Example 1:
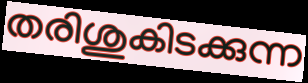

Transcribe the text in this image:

തരിശുകിടക്കുന്ന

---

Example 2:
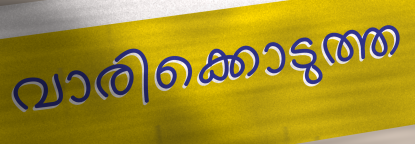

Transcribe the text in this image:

വാരിക്കൊടുത്ത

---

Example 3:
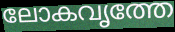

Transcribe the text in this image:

ലോകവൃത്തേ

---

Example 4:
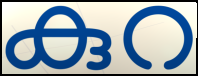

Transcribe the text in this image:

കുറ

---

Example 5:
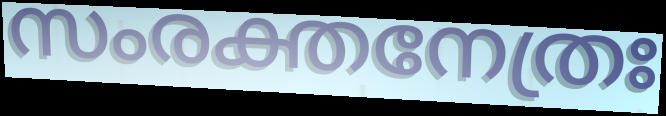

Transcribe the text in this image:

സംരക്തനേത്രഃ